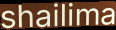
shailima